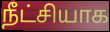
நீட்சியாக